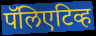
पॅलिएटिव्ह